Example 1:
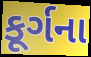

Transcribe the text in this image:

કૂર્ગના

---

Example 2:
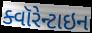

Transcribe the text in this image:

ક્વૉરેન્ટાઇન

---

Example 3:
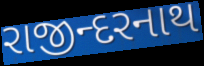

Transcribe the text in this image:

રાજીન્દરનાથ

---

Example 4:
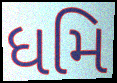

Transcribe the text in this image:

ધમિ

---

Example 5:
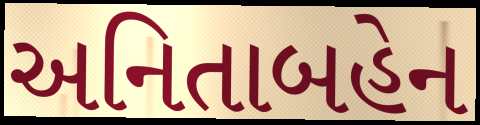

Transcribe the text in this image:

અનિતાબહેન